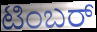
ಟಿಂಬರ್